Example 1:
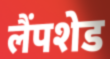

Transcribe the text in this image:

लैंपशेड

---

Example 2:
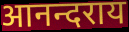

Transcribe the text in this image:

आनन्दराय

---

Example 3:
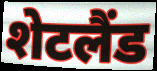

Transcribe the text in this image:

शेटलैंड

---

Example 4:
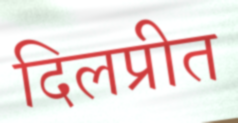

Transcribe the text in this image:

दिलप्रीत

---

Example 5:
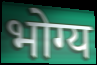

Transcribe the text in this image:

भोग्य